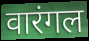
वारंगल